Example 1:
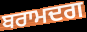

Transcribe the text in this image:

ਬਰਾਮਦਗ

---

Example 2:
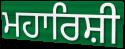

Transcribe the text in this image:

ਮਹਾਰਿਸ਼ੀ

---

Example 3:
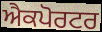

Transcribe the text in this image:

ਐਕਪੋਰਟਰ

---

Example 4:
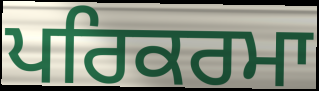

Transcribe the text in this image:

ਪਰਿਕਰਮਾ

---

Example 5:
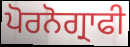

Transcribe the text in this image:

ਪੋਰਨੋਗ੍ਰਾਫੀ